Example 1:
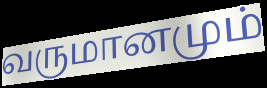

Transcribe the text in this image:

வருமானமும்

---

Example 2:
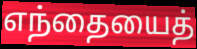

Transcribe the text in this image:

எந்தையைத்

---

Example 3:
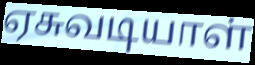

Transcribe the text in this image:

ஏசுவடியாள்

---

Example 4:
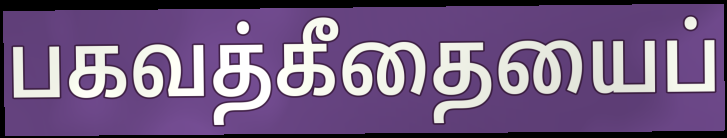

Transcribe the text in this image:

பகவத்கீதையைப்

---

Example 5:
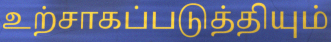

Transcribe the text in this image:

உற்சாகப்படுத்தியும்